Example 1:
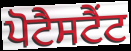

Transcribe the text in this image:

ਪੋਟੈਸਟੈਂਟ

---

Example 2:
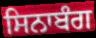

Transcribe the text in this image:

ਸਿਨਾਬੰਗ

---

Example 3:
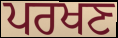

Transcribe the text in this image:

ਪਰਖਣ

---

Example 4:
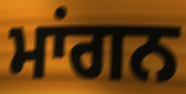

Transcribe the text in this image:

ਮਾਂਗਨ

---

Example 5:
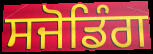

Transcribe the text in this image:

ਸਜੋਡਿੰਗ